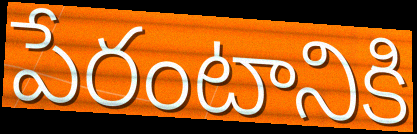
పేరంటానికి